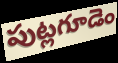
పుట్లగూడెం